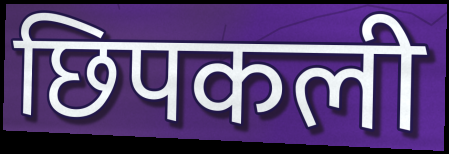
छिपकली